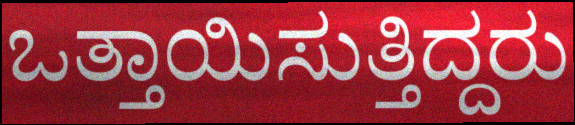
ಒತ್ತಾಯಿಸುತ್ತಿದ್ದರು